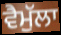
ਵੈਮੁੱਲਾ